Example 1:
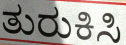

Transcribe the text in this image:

ತುರುಕಿಸಿ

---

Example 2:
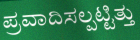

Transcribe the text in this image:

ಪ್ರವಾದಿಸಲ್ಪಟ್ಟಿತ್ತು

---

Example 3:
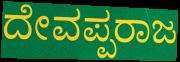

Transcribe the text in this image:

ದೇವಪ್ಪರಾಜ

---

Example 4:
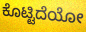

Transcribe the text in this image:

ಕೊಟ್ಟಿದೆಯೋ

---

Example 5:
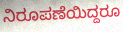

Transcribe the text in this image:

ನಿರೂಪಣೆಯಿದ್ದರೂ